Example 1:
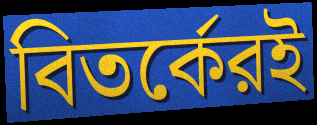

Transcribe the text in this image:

বিতর্কেরই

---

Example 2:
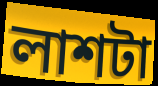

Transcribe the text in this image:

লাশটা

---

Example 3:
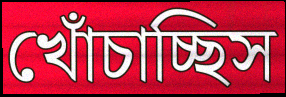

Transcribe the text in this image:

খোঁচাচ্ছিস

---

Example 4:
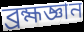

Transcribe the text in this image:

ব্রহ্মজ্ঞান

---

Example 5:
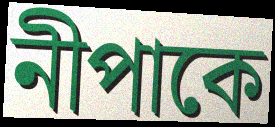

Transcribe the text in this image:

নীপাকে